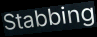
Stabbing